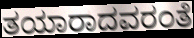
ತಯಾರಾದವರಂತೆ